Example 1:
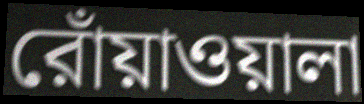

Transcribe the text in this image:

রোঁয়াওয়ালা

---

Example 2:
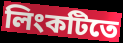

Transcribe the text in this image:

লিংকটিতে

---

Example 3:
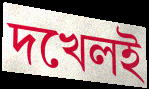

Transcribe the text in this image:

দখেলই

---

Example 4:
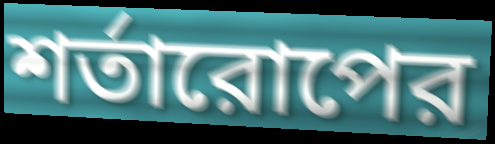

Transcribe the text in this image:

শর্তারোপের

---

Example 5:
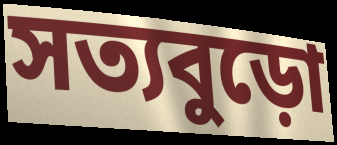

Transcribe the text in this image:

সত্যবুড়ো